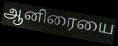
ஆனிரையை